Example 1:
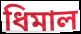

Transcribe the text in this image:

ধিমাল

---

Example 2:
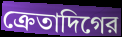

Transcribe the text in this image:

ক্রেতাদিগের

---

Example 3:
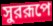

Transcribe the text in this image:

সুররূপে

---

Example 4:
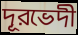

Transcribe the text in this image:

দূরভেদী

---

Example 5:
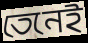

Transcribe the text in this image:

তেনেই